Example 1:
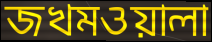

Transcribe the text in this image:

জখমওয়ালা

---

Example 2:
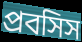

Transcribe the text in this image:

প্রবসিস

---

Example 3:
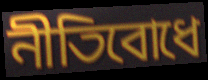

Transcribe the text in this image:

নীতিবোধে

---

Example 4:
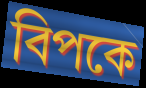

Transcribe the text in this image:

বিপকে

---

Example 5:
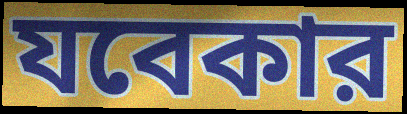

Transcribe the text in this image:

যবেকার